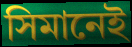
সিমানেই